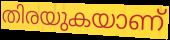
തിരയുകയാണ്